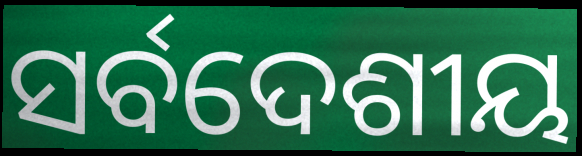
ସର୍ବଦେଶୀୟ